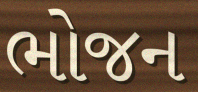
ભોજન